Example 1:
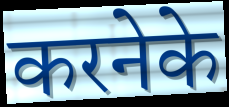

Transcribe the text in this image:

करनेके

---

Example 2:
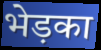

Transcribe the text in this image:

भेड़का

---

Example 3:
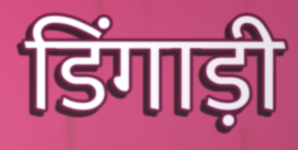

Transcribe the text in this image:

डिंगाड़ी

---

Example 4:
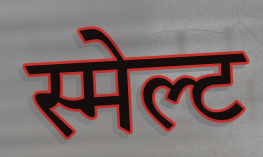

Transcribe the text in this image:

स्मेल्ट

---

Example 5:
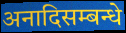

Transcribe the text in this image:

अनादिसम्बन्धे